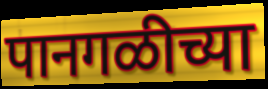
पानगळीच्या